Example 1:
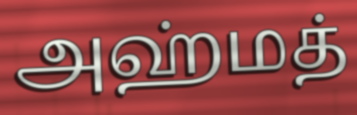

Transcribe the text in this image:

அஹ்மத்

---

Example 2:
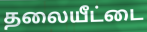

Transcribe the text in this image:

தலையீட்டை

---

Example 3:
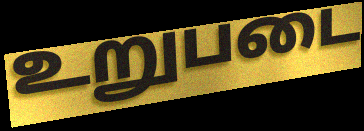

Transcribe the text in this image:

உறுபடை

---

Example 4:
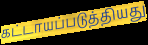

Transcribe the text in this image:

கட்டாயப்படுத்தியது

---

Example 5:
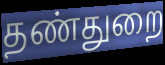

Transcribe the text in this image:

தண்துறை